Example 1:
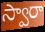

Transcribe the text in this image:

స్వారా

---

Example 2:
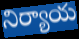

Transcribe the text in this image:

నిర్యాయ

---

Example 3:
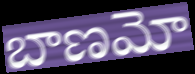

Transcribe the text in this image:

బాణమో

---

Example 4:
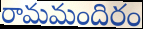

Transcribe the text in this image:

రామమందిరం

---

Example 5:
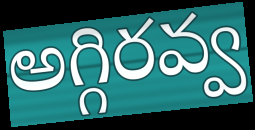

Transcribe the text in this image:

అగ్గిరవ్వ